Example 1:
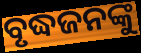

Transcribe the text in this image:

ବୃଦ୍ଧଜନଙ୍କୁ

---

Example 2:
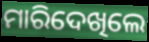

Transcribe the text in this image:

ମାରିଦେଖିଲେ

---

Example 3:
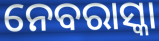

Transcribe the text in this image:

ନେବରାସ୍କା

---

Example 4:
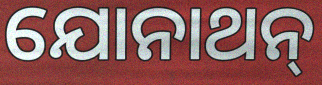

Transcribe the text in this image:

ଯୋନାଥନ୍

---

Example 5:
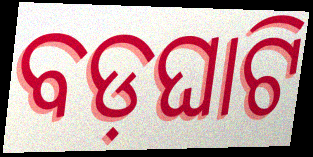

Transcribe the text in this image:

ବଡ଼ଘାଟି